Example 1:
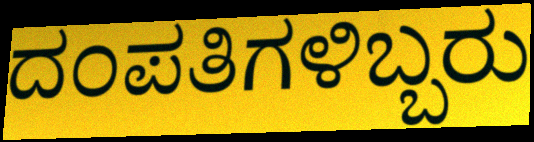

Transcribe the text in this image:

ದಂಪತಿಗಳಿಬ್ಬರು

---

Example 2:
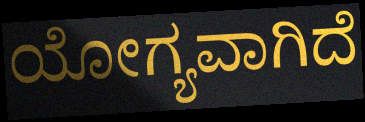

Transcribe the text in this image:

ಯೋಗ್ಯವಾಗಿದೆ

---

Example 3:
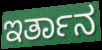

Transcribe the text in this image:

ಇರ್ತಾನ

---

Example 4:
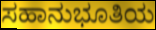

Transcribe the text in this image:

ಸಹಾನುಭೂತಿಯ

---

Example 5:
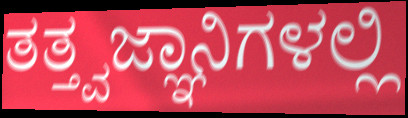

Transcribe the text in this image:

ತತ್ತ್ವಜ್ಞಾನಿಗಳಲ್ಲಿ